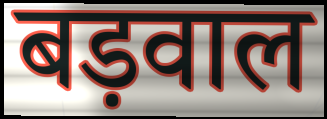
बड़वाल